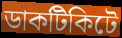
ডাকটিকিটে